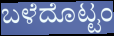
ಬಳೆದೊಟ್ಟಂ